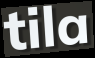
tila